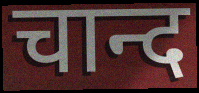
चान्द